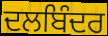
ਦਲਬਿੰਦਰ